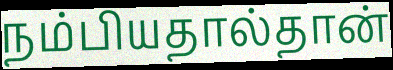
நம்பியதால்தான்